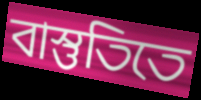
বাস্তুতিতে